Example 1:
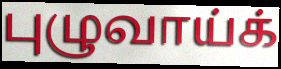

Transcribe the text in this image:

புழுவாய்க்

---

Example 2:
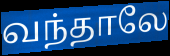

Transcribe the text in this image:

வந்தாலே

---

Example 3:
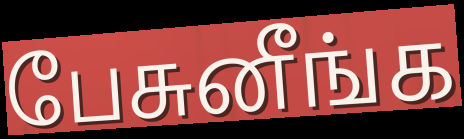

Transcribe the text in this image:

பேசுனீங்க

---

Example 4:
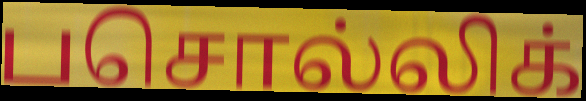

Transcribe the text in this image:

பசொல்லிக்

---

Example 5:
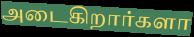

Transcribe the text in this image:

அடைகிறார்களா